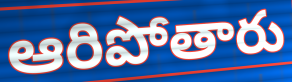
ఆరిపోతారు